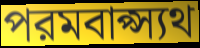
পরমবাপ্স্যথ